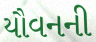
યૌવનની